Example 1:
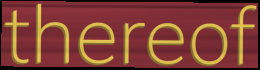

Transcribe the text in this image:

thereof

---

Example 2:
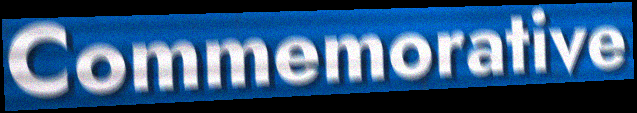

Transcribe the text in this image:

Commemorative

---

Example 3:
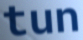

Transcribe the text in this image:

tun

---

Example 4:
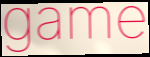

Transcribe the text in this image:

game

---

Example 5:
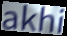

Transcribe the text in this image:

akhi